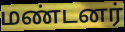
மண்டனர்